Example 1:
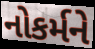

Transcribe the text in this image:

નોકર્મને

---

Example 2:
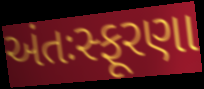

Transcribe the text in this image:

અંતઃસ્ફૂરણા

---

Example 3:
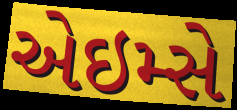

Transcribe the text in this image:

એઇમ્સે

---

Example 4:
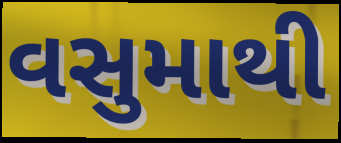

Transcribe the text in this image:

વસુમાથી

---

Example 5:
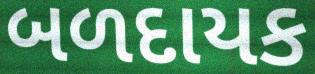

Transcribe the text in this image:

બળદાયક